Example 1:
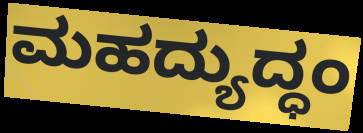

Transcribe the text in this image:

ಮಹದ್ಯುದ್ಧಂ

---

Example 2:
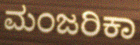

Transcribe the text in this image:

ಮಂಜರಿಕಾ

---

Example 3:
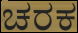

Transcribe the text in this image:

ಚರಕ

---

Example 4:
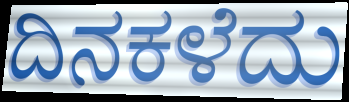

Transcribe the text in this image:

ದಿನಕಳೆದು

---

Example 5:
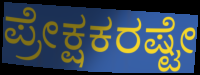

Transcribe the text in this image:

ಪ್ರೇಕ್ಷಕರಷ್ಟೇ